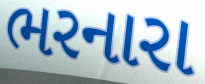
ભરનારા